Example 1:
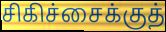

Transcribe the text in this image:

சிகிச்சைக்குத்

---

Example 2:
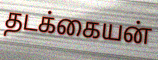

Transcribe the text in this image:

தடக்கையன்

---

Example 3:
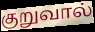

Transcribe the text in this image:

குறுவால்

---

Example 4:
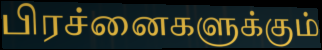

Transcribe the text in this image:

பிரச்னைகளுக்கும்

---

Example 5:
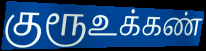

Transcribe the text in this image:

குரூஉக்கண்